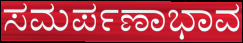
ಸಮರ್ಪಣಾಭಾವ